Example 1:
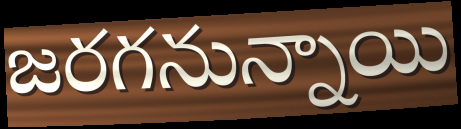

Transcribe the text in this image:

జరగనున్నాయి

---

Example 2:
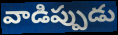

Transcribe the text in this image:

వాడిప్పుడు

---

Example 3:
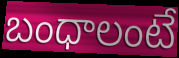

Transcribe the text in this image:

బంధాలంటే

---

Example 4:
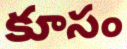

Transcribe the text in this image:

కూసం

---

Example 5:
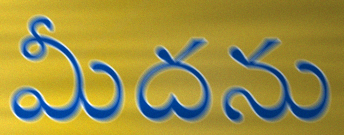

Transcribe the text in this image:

మీదను